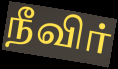
நீவிர்